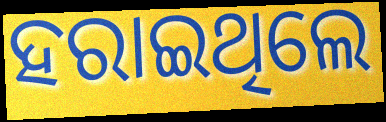
ହରାଇଥିଲେ